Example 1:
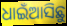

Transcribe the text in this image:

ଧାଇଁଆସିଛୁ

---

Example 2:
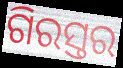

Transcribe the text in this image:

ଗିରସ୍ତର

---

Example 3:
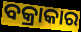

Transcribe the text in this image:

ବକ୍ରାକାର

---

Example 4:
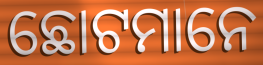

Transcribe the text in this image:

ଛୋଟମାନେ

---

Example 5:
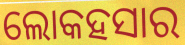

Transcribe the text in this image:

ଲୋକହସାର